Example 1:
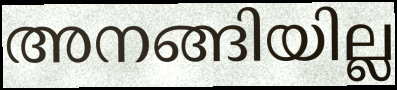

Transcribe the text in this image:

അനങ്ങിയില്ല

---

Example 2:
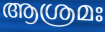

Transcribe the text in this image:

ആശ്രമഃ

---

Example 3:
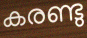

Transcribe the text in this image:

കരണ്ടു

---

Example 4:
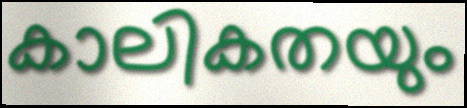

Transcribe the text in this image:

കാലികതയും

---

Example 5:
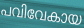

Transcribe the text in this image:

പവിവേകായ